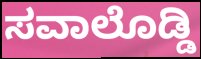
ಸವಾಲೊಡ್ಡಿ